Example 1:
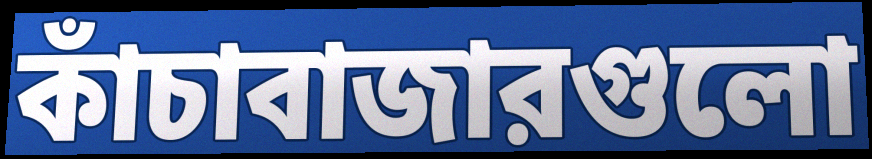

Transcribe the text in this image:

কাঁচাবাজারগুলো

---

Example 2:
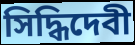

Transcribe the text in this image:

সিদ্ধিদেবী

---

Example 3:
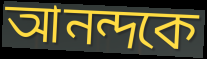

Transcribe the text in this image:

আনন্দকে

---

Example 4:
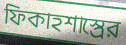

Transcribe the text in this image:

ফিকাহশাস্ত্রের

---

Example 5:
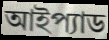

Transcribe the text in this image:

আইপ্যাড